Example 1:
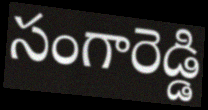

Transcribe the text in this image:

సంగారెడ్డి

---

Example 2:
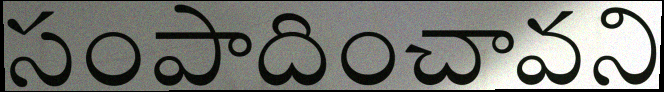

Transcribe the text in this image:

సంపాదించావని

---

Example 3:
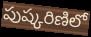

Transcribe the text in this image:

పుష్కరిణిలో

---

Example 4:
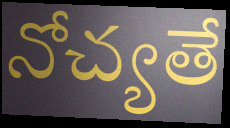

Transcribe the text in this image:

నోచ్యతే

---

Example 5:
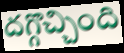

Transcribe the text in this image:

దగ్గొచ్చింది